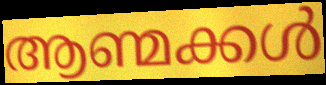
ആണ്മക്കൾ